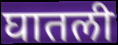
घातली